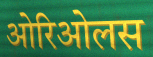
ओरिओलस